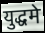
युद्धमे